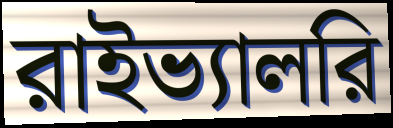
রাইভ্যালরি